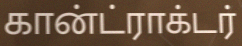
கான்ட்ராக்டர்